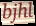
bjhl